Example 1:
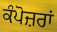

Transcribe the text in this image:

ਕੰਪੋਜ਼ਰਾਂ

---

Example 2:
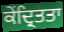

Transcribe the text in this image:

ਕੇਂਦ੍ਰਿਤਤਾ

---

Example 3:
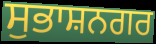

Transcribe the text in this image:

ਸੁਭਾਸ਼ਨਗਰ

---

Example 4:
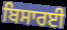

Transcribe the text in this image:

ਬਿਸਾਰਈ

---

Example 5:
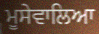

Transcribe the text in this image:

ਮੂਸੇਵਾਲਿਆ